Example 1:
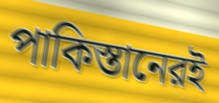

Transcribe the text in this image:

পাকিস্তানেরই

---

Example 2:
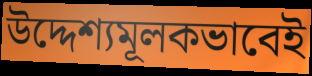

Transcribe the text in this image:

উদ্দেশ্যমূলকভাবেই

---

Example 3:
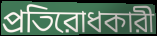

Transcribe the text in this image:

প্রতিরোধকারী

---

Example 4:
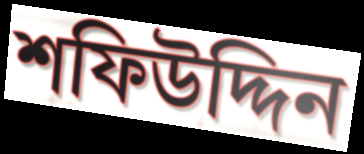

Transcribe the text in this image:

শফিউদ্দিন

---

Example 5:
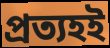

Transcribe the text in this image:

প্রত্যহই